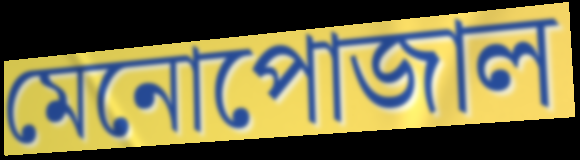
মেনোপোজাল